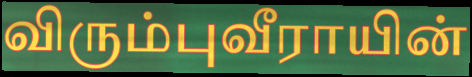
விரும்புவீராயின்